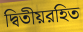
দ্বিতীয়রহিত